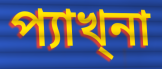
প্যাখ্না